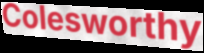
Colesworthy